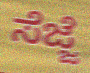
ಸೆಜ್ಜೆ